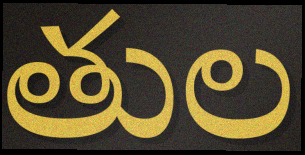
తుల